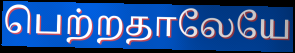
பெற்றதாலேயே